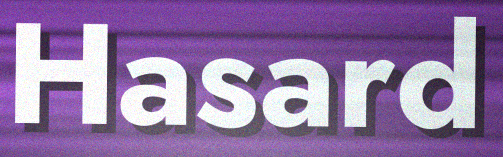
Hasard